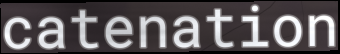
catenation